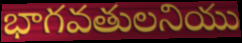
భాగవతులనియు